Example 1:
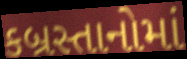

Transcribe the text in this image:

કબ્રસ્તાનોમાં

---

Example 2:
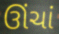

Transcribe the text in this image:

ઊંચાં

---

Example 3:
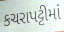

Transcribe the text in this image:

કચરાપટ્ટીમાં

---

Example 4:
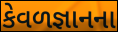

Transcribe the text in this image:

કેવળજ્ઞાનના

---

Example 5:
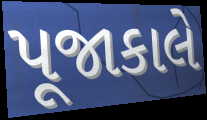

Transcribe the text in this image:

પૂજાકાલે